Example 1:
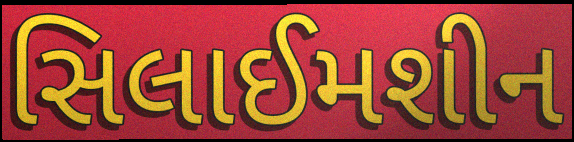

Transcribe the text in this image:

સિલાઈમશીન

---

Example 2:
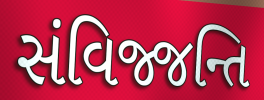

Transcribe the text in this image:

સંવિજ્જન્તિ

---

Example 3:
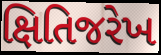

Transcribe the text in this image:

ક્ષિતિજરેખ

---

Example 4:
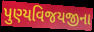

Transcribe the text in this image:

પુણ્યવિજયજીના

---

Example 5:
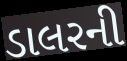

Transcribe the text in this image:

ડાલરની